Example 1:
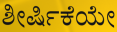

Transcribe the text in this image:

ಶೀರ್ಷಿಕೆಯೇ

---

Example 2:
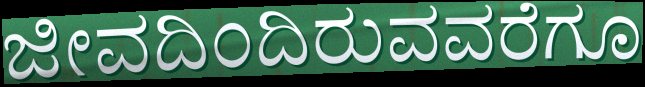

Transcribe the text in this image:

ಜೀವದಿಂದಿರುವವರೆಗೂ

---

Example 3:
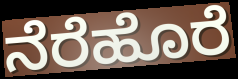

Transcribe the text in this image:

ನೆರೆಹೊರೆ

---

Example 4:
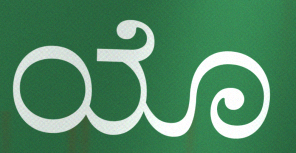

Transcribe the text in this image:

ಯೊ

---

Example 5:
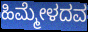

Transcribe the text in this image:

ಹಿಮ್ಮೇಳದವ